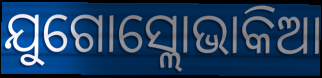
ଯୁଗୋସ୍ଲୋଭାକିଆ